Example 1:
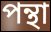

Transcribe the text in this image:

পন্থা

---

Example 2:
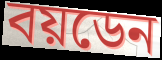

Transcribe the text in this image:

বয়ডেন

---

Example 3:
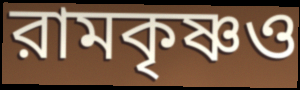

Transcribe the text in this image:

রামকৃষ্ণও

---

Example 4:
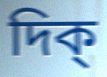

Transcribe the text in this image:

দিক্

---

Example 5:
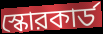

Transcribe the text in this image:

স্কোরকার্ড